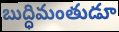
బుద్ధిమంతుడూ